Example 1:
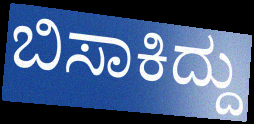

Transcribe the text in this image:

ಬಿಸಾಕಿದ್ದು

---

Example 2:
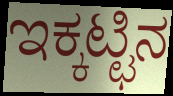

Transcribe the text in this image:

ಇಕ್ಕಟ್ಟಿನ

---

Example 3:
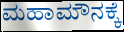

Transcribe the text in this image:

ಮಹಾಮೌನಕ್ಕೆ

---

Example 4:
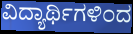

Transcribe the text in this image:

ವಿದ್ಯಾರ್ಥಿಗಳಿಂದ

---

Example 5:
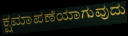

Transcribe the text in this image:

ಕ್ಷಮಾಪಣೆಯಾಗುವುದು